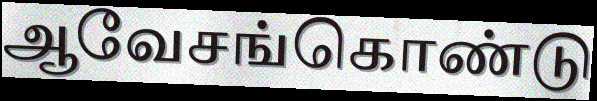
ஆவேசங்கொண்டு